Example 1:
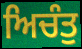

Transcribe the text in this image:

ਅਿਚੰਤੁ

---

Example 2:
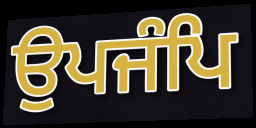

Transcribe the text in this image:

ਉਪਜੰਪਿ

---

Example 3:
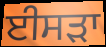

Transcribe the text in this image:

ਈਸੜਾ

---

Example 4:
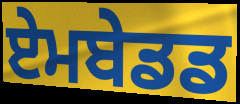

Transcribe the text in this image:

ਏਮਬੇਡਡ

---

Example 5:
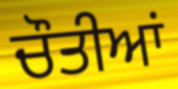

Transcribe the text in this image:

ਚੌਤੀਆਂ